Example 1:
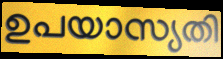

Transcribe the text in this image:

ഉപയാസ്യതി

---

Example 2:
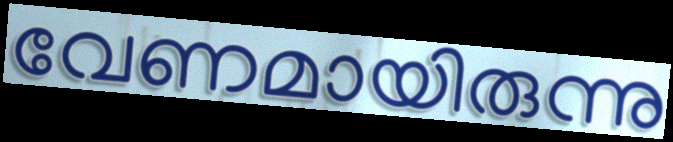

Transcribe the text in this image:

വേണമായിരുന്നു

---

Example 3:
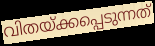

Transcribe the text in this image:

വിതയ്ക്കപ്പെടുന്നത്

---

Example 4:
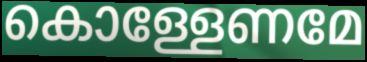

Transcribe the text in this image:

കൊള്ളേണമേ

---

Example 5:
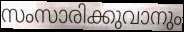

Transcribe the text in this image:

സംസാരിക്കുവാനും